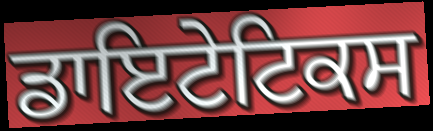
ਡਾਇਟੇਟਿਕਸ